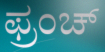
ಫ್ರಂಚ್